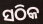
ସଠିକ